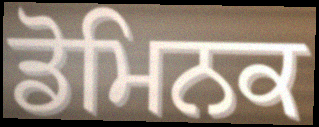
ਡੋਮਿਨਕ